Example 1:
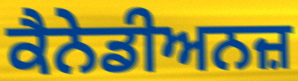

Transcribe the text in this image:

ਕੈਨੇਡੀਅਨਜ਼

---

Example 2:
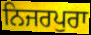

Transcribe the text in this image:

ਨਿਜਰਪੁਰਾ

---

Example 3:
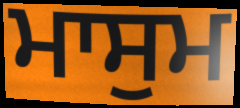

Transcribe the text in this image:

ਮਾਸੁਮ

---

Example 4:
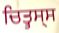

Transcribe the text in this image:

ਚਿਤ੍ਤਸ੍ਸ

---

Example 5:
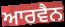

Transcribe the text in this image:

ਆਰਵੈਨ